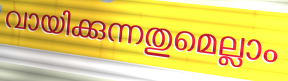
വായിക്കുന്നതുമെല്ലാം